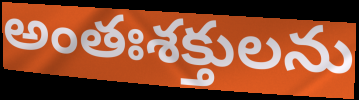
అంతఃశక్తులను